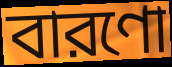
বারণো